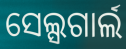
ସେଲ୍ସଗାର୍ଲ